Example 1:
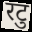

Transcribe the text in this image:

रटु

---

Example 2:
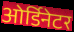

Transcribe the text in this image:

ओर्डिनेटर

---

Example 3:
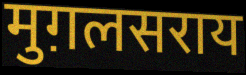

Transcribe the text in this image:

मुग़लसराय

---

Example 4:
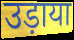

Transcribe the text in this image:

उड़ाया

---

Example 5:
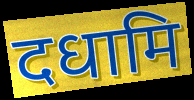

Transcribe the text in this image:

दधामि